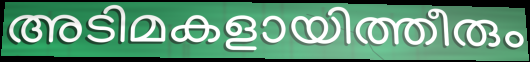
അടിമകളായിത്തീരും